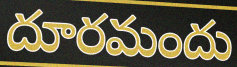
దూరమందు